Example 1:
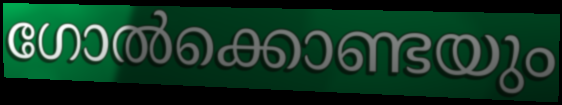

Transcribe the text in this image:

ഗോൽക്കൊണ്ടയും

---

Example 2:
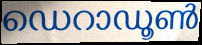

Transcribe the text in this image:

ഡെറാഡൂൺ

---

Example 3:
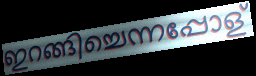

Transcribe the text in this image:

ഇറങ്ങിച്ചെന്നപ്പോള്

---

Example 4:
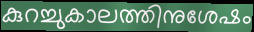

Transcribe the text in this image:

കുറച്ചുകാലത്തിനുശേഷം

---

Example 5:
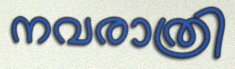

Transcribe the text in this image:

നവരാത്രി